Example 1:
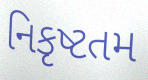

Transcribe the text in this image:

નિકૃષ્ટતમ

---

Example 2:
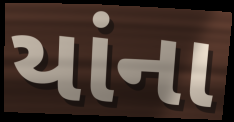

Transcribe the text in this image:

યાંના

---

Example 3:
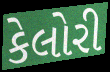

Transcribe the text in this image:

કેલોરી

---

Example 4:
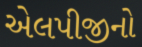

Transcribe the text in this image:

એલપીજીનો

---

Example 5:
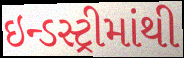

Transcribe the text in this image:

ઇન્ડસ્ટ્રીમાંથી